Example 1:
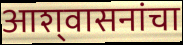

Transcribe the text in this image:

आश्वासनांचा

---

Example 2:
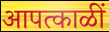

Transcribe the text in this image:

आपत्काळीं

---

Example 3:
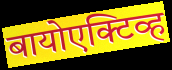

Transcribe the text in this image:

बायोएक्टिव्ह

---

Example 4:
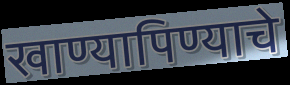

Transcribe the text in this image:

खाण्यापिण्याचे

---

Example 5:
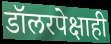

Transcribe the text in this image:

डॉलरपेक्षाही